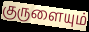
குருளையும்